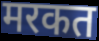
मरकत